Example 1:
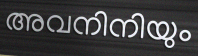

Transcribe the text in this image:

അവനിനിയും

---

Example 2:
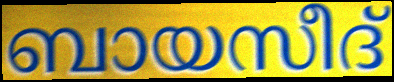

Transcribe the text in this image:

ബായസീദ്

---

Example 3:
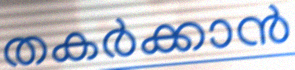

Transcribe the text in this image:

തകർക്കാൻ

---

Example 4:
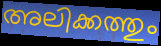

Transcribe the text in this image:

അലിക്കത്തും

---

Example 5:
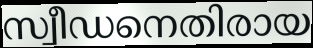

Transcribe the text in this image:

സ്വീഡനെതിരായ